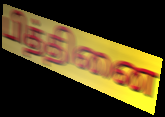
பித்தினை